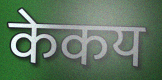
केकय